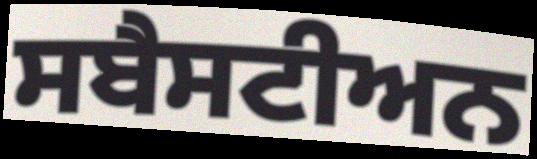
ਸਬੈਸਟੀਅਨ